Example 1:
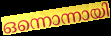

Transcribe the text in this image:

ഒന്നൊന്നായി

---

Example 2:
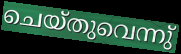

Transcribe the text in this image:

ചെയ്തുവെന്നു്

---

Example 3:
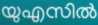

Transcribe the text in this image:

യുഎസിൽ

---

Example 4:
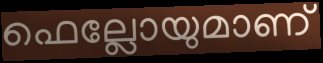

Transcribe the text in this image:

ഫെല്ലോയുമാണ്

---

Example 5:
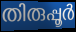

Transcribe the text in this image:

തിരുപ്പൂർ